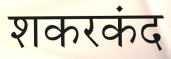
शकरकंद